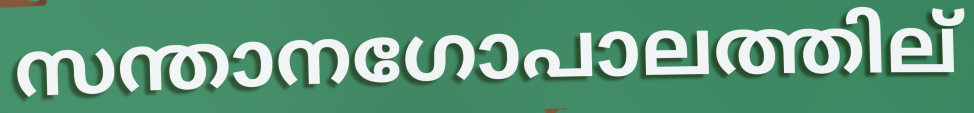
സന്താനഗോപാലത്തില്